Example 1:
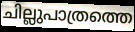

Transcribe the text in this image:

ചില്ലുപാത്രത്തെ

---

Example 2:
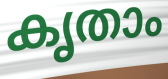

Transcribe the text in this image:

കൃതാം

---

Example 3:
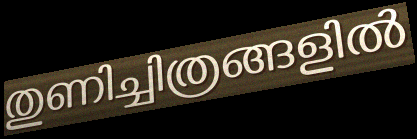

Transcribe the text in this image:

തുണിച്ചിത്രങ്ങളിൽ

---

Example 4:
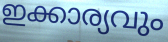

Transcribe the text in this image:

ഇക്കാര്യവും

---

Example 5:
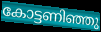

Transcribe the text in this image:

കോട്ടണിഞ്ഞു